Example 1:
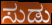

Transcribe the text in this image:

ಸುಡು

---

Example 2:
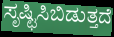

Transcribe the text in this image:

ಸೃಷ್ಟಿಸಿಬಿಡುತ್ತದೆ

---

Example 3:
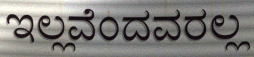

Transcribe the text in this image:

ಇಲ್ಲವೆಂದವರಲ್ಲ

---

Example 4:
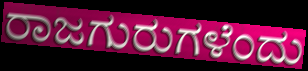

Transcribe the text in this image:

ರಾಜಗುರುಗಳೆಂದು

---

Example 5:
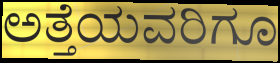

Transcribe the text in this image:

ಅತ್ತೆಯವರಿಗೂ